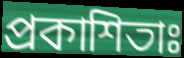
প্রকাশিতাঃ